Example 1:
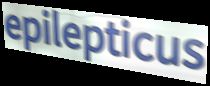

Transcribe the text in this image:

epilepticus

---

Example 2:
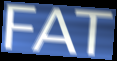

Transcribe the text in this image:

FAT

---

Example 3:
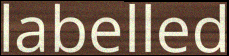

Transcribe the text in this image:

labelled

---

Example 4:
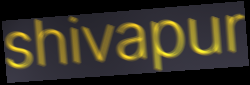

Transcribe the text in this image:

shivapur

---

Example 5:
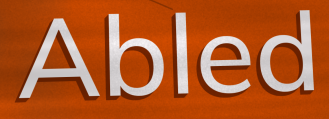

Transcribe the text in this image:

Abled